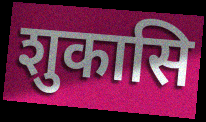
शुकासि